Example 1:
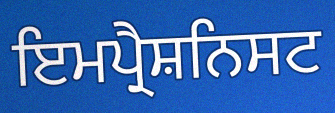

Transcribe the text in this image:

ਇਮਪ੍ਰੈਸ਼ਨਿਸਟ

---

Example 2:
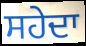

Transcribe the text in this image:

ਸਹੇਦਾ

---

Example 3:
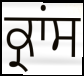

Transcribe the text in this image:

ਕ੍ਰਾਂਸ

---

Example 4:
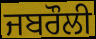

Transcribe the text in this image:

ਜਬਰੌਲੀ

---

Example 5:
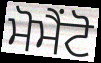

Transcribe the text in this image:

ਮੋਮੈਂਟੋ